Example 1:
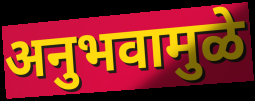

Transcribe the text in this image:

अनुभवामुळे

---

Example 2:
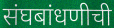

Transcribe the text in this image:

संघबांधणीची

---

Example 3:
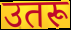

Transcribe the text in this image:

उतरू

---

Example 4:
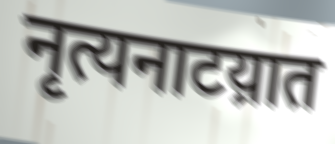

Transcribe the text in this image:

नृत्यनाटय़ात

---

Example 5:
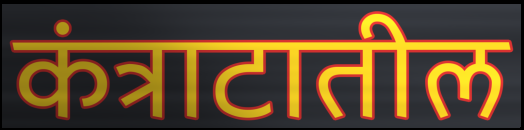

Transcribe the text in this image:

कंत्राटातील